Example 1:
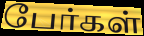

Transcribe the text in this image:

பேர்கள்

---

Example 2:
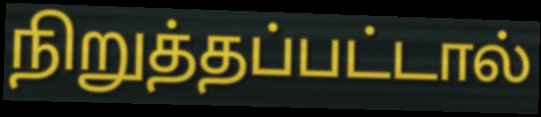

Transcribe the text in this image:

நிறுத்தப்பட்டால்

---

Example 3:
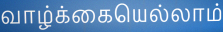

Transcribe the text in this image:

வாழ்க்கையெல்லாம்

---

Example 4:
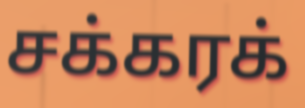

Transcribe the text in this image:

சக்கரக்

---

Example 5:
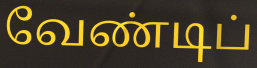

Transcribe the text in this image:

வேண்டிப்